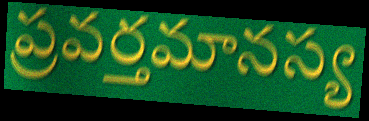
ప్రవర్తమానస్య